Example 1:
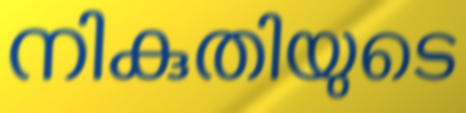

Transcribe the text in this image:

നികുതിയുടെ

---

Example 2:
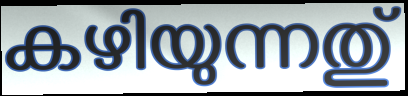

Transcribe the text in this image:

കഴിയുന്നതു്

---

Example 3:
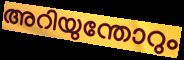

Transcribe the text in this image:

അറിയുന്തോറും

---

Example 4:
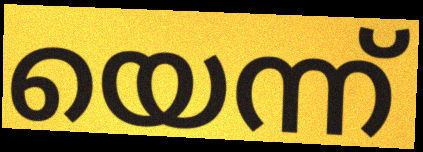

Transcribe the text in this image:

യെന്ന്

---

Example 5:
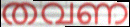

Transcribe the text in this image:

തവണ